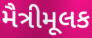
મૈત્રીમૂલક